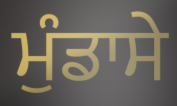
ਮੁੰਡਾਸੇ